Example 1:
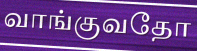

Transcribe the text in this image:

வாங்குவதோ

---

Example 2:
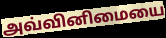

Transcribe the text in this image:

அவ்வினிமையை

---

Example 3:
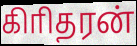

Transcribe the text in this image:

கிரிதரன்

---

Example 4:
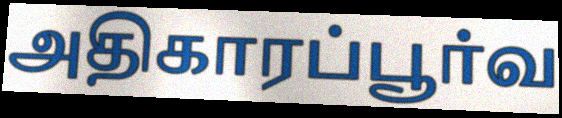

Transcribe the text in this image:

அதிகாரப்பூர்வ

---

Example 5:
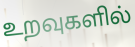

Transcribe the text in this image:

உறவுகளில்